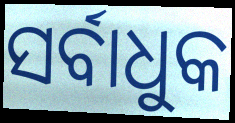
ସର୍ବାଧୁକ